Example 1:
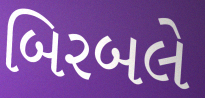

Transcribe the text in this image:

બિરબલે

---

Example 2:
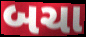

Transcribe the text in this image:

બચા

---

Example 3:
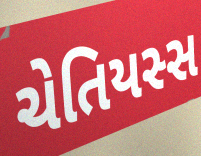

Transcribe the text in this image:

ચેતિયસ્સ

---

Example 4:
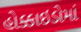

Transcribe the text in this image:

હોક્કાઇડોમાં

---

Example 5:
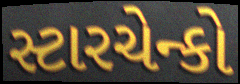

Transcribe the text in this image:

સ્ટારચેન્કો